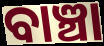
ବାଞ୍ଚା